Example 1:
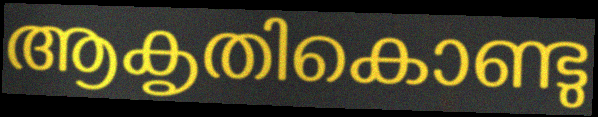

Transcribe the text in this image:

ആകൃതികൊണ്ടു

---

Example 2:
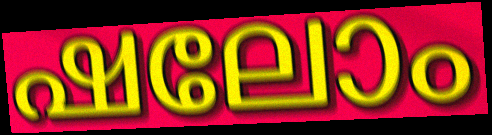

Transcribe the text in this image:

ഷലോം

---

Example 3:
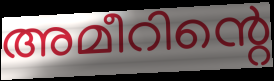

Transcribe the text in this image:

അമീറിന്റെ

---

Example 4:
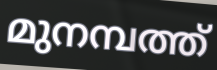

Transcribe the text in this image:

മുനമ്പത്ത്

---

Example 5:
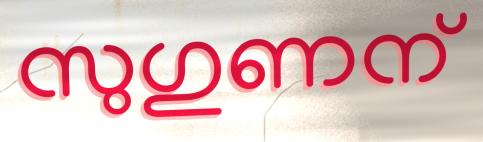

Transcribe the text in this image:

സുഗുണന്